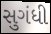
સુગંધી